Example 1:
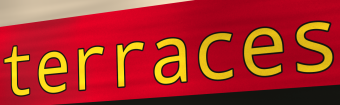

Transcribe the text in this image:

terraces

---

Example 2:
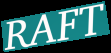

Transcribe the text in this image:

RAFT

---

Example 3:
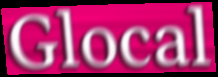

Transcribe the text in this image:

Glocal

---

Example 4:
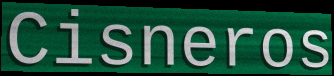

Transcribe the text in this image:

Cisneros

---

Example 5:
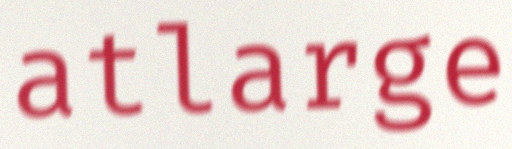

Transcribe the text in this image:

atlarge